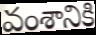
వంశానికి